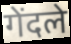
गेंदले